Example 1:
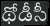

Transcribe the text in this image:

థోడీసీ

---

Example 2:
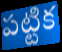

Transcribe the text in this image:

పట్టిక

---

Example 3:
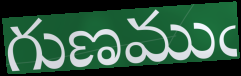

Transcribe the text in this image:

గుణముఁ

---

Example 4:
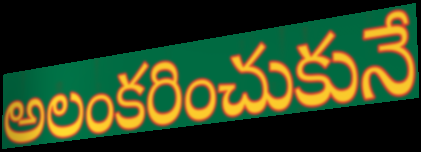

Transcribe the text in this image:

అలంకరించుకునే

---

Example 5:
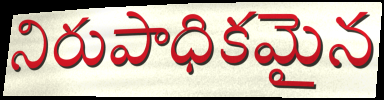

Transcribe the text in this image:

నిరుపాధికమైన